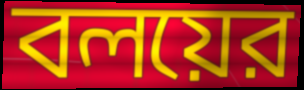
বলয়ের